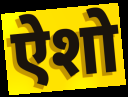
ऐशो